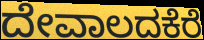
ದೇವಾಲದಕೆರೆ